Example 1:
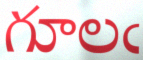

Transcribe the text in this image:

గూలఁ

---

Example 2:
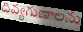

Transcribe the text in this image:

దివ్యగుణాలను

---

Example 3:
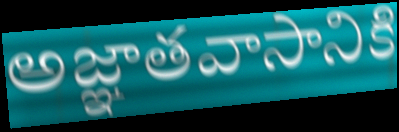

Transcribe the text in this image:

అజ్ఞాతవాసానికి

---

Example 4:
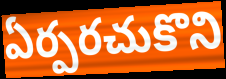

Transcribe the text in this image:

ఏర్పరచుకొని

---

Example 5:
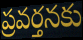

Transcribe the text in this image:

ప్రవర్తనకు